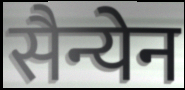
सैन्येन